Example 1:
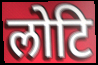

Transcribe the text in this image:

लोटि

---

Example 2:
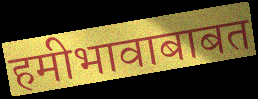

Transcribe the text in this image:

हमीभावाबाबत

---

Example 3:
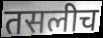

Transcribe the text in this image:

तसलीच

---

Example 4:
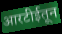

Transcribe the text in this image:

आरटीईतून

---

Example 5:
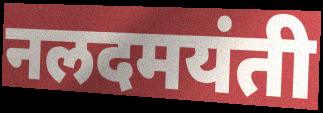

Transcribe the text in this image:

नलदमयंती